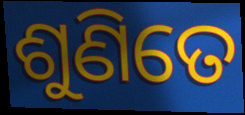
ଶୁଣିତେ